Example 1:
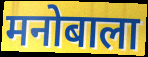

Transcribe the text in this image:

मनोबाला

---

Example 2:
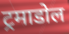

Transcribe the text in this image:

ट्रमाडोल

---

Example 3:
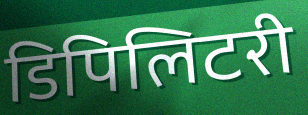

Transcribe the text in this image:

डिपिलिटरी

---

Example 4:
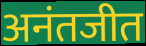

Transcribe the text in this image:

अनंतजीत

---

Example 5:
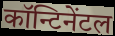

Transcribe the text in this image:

कॉन्टिनेंटल